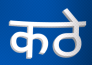
कठे